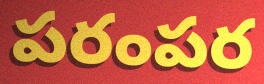
పరంపర